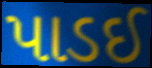
પાડઈ